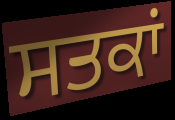
ਸਤਕਾਂ